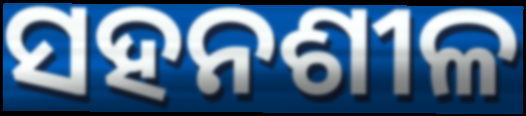
ସହନଶୀଳ